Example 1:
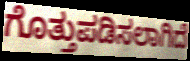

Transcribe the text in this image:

ಗೊತ್ತುಪಡಿಸಲಾಗಿದೆ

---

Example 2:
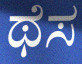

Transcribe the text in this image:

ಥೆಸ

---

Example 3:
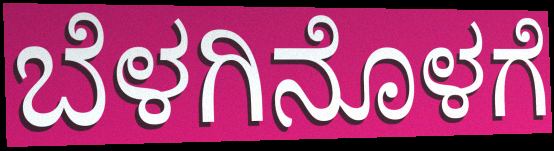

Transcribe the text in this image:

ಬೆಳಗಿನೊಳಗೆ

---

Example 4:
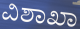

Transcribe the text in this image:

ವಿಶಾಖಾ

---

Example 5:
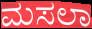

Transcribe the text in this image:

ಮಸಲಾ